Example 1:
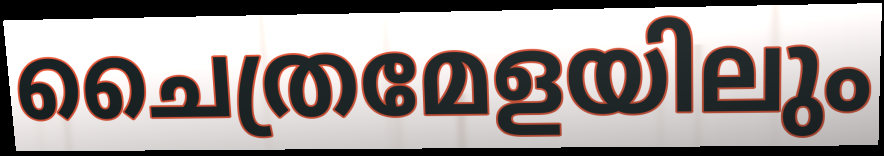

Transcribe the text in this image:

ചൈത്രമേളയിലും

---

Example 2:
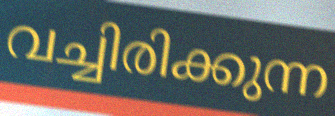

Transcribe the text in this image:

വച്ചിരിക്കുന്ന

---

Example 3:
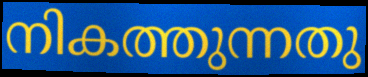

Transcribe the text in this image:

നികത്തുന്നതു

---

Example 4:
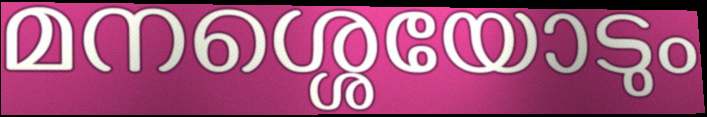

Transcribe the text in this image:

മനശ്ശെയോടും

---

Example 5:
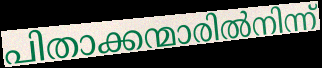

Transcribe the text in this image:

പിതാക്കന്മാരിൽനിന്ന്